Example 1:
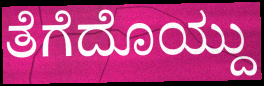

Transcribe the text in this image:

ತೆಗೆದೊಯ್ದು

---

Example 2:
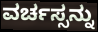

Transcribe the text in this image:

ವರ್ಚಸ್ಸನ್ನು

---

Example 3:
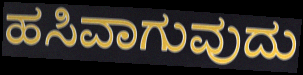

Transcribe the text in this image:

ಹಸಿವಾಗುವುದು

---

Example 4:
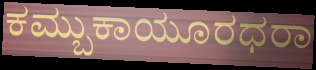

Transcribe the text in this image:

ಕಮ್ಬುಕಾಯೂರಧರಾ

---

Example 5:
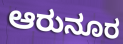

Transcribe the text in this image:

ಆರುನೂರ